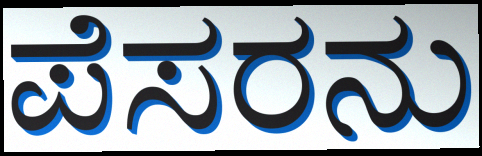
ಪೆಸರನು